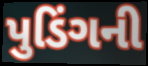
પુડિંગની